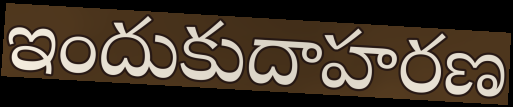
ఇందుకుదాహరణ